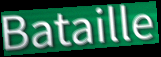
Bataille